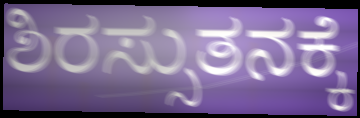
ಶಿರಸ್ಸುತನಕ್ಕೆ